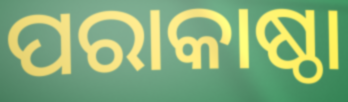
ପରାକାଷ୍ଠା